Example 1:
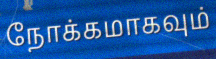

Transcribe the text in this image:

நோக்கமாகவும்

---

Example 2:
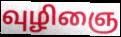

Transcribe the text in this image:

வுழிஞை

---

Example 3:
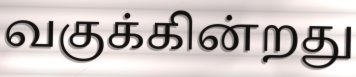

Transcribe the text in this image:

வகுக்கின்றது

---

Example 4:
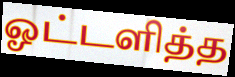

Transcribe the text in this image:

ஓட்டளித்த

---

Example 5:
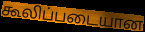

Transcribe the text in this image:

கூலிப்படையான